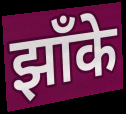
झाँके